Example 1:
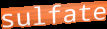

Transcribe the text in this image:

sulfate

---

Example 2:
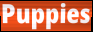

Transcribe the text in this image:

Puppies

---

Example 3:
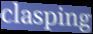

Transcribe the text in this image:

clasping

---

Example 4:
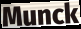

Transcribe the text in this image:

Munck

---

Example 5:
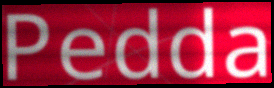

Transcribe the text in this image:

Pedda